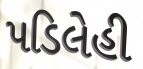
પડિલેહી